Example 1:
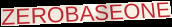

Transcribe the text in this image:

ZEROBASEONE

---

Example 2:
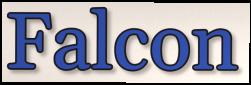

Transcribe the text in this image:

Falcon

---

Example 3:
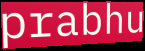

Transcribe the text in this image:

prabhu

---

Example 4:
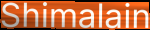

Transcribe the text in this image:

Shimalain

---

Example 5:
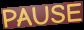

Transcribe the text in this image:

PAUSE